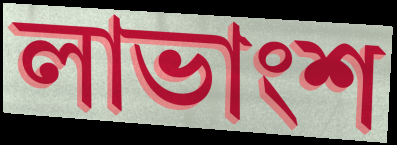
লাভাংশ